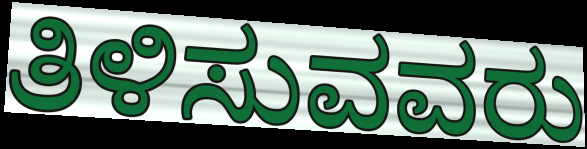
ತಿಳಿಸುವವರು